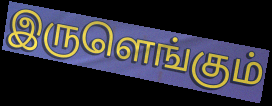
இருளெங்கும்